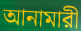
আনামারী